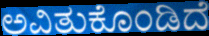
ಅವಿತುಕೊಂಡಿದೆ